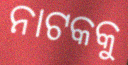
ନାଟକକୁ